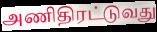
அணிதிரட்டுவது